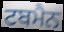
ਟਬਮੈਨ